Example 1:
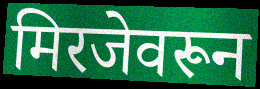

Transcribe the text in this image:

मिरजेवरून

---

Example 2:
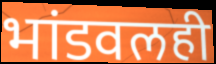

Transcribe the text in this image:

भांडवलही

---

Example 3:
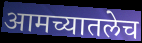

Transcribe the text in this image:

आमच्यातलेच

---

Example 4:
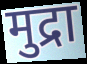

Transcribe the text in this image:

मुद्रा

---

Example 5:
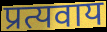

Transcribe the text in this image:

प्रत्यवाय